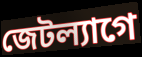
জেটল্যাগে